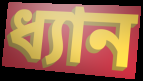
ধ্যান